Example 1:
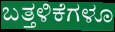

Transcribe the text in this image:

ಬತ್ತಳಿಕೆಗಳೂ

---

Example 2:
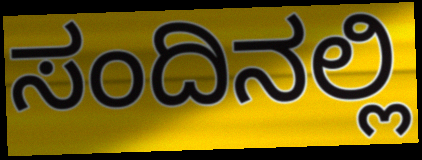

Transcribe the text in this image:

ಸಂದಿನಲ್ಲಿ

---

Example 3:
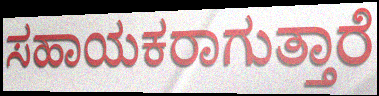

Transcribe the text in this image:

ಸಹಾಯಕರಾಗುತ್ತಾರೆ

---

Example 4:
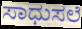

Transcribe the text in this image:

ಸಾಧುಸಲೆ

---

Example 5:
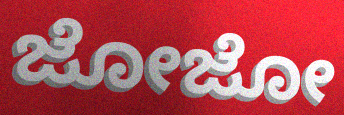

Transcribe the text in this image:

ಜೋಜೋ